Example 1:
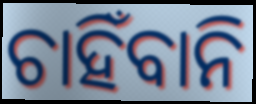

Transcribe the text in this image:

ଚାହିଁବାନି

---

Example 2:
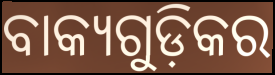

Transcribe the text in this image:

ବାକ୍ୟଗୁଡ଼ିକର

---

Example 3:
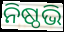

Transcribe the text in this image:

ନିଷ୍ଠଭି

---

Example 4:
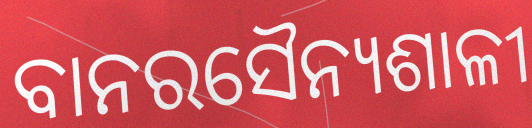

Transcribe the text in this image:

ବାନରସୈନ୍ୟଶାଳୀ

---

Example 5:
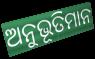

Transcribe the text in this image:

ଅନୁଭୂତିମାନ